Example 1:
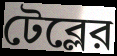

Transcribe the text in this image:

টেব্লের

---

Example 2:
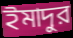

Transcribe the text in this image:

ইমাদুর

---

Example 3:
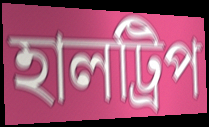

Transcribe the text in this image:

হালট্রিপ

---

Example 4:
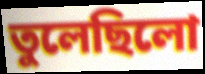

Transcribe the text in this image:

তুলেছিলো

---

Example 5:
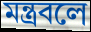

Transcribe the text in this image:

মন্ত্রবলে